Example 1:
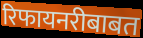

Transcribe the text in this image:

रिफायनरीबाबत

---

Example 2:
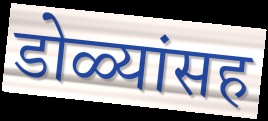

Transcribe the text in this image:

डोळ्यांसह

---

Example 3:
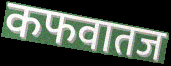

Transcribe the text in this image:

कफवातज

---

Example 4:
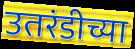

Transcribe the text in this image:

उतरंडीच्या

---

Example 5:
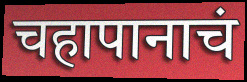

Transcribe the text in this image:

चहापानाचं